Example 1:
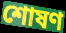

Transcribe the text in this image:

শোষণ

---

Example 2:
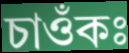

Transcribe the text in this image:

চাওঁকঃ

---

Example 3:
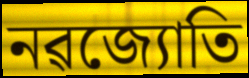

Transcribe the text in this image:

নৱজ্যোতি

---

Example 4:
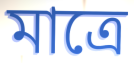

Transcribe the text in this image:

মাত্ৰে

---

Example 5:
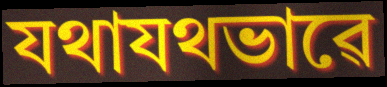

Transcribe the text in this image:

যথাযথভাৱে